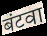
बंटवा